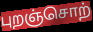
புறஞ்சொற்